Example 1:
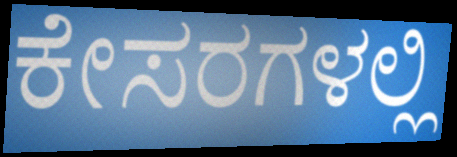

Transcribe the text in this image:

ಕೇಸರಗಳಲ್ಲಿ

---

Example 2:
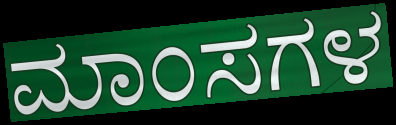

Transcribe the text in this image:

ಮಾಂಸಗಳ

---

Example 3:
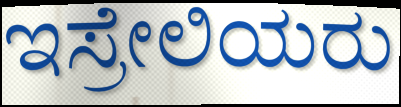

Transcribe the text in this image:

ಇಸ್ರೇಲಿಯರು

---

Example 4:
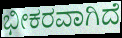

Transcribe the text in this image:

ಭೀಕರವಾಗಿದೆ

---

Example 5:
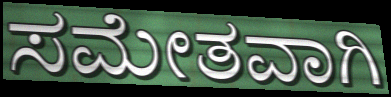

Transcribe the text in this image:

ಸಮೇತವಾಗಿ